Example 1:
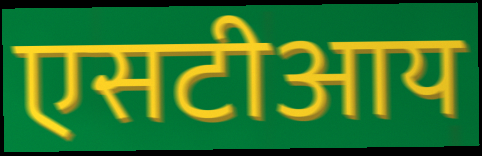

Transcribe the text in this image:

एसटीआय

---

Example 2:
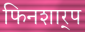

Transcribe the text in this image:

फिनशार्प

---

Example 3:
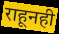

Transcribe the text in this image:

राहूनही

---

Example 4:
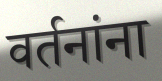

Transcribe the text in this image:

वर्तनांना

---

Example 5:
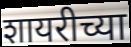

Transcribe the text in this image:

शायरीच्या